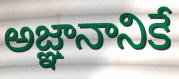
అజ్ఞానానికే